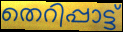
തെറിപ്പാട്ട്